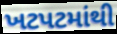
ખટપટમાંથી